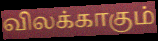
விலக்காகும்